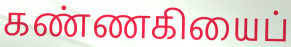
கண்ணகியைப்